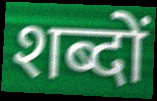
शब्‍दों